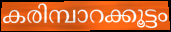
കരിമ്പാറക്കൂട്ടം